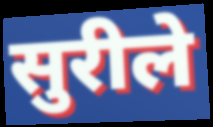
सुरीले